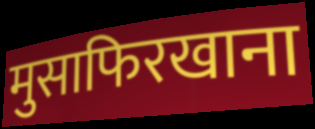
मुसाफिरखाना